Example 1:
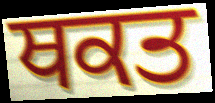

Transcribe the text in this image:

ਥਕਤ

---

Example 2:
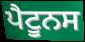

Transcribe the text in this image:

ਪੈਟੂਨਸ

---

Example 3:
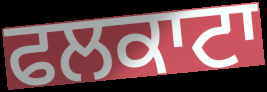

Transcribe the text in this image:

ਫਲਕਾਟਾ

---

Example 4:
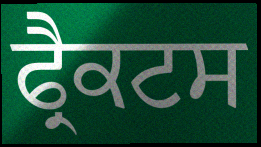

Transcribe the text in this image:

ਫ੍ਰੈਕਟਸ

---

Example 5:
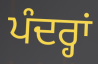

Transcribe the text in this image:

ਪੰਦਰ੍ਹਾਂ